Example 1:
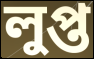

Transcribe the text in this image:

লুপ্ত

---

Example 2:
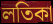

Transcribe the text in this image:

লতিকা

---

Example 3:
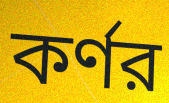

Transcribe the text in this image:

কর্ণর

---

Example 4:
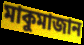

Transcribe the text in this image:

মাকুমাজান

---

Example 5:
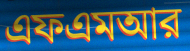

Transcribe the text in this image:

এফএমআর